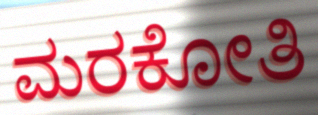
ಮರಕೋತಿ